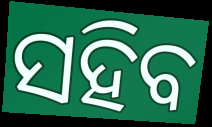
ସହିବ